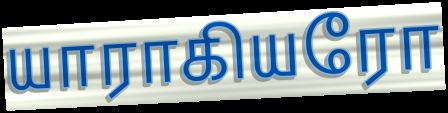
யாராகியரோ